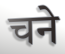
चने